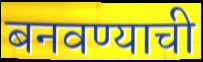
बनवण्याची